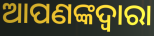
ଆପଣଙ୍କଦ୍ବାରା